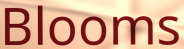
Blooms